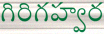
గిరిగహ్వర